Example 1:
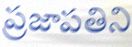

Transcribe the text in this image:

ప్రజాపతిని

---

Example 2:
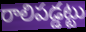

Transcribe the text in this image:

రాలిపడ్డట్టు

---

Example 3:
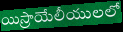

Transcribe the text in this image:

యిస్రాయేలీయులలో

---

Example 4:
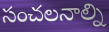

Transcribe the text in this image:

సంచలనాల్ని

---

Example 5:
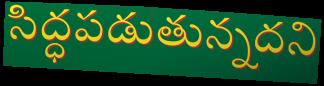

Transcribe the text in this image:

సిద్ధపడుతున్నదని